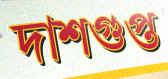
দাশগুপ্ত